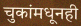
चुकांमधूनही